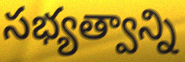
సభ్యత్వాన్ని